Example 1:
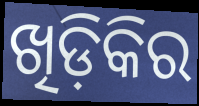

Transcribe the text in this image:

ଖିଡ଼ିକିର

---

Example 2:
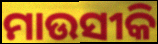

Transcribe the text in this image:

ମାଉସୀକି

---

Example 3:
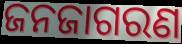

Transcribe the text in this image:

ଜନଜାଗରଣ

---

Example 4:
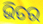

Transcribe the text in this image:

ଭିତର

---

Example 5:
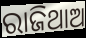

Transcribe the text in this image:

ରାଜିଥାଅ